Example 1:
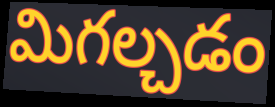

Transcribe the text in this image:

మిగల్చడం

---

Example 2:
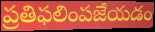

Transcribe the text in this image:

ప్రతిఫలింపజేయడం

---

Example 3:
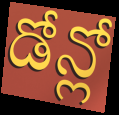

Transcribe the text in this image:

డోన్లో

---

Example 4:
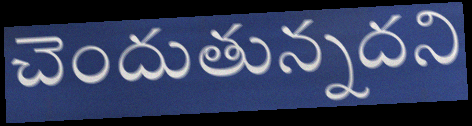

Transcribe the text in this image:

చెందుతున్నదని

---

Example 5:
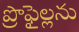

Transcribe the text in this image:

ప్రొఫైల్లను